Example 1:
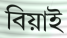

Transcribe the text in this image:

বিয়াই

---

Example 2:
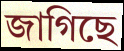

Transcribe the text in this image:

জাগিছে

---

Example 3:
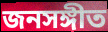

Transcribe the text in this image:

জনসঙ্গীত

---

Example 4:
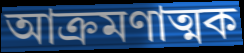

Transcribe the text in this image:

আক্ৰমণাত্মক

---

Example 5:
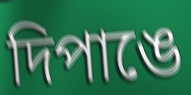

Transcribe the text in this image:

দিপাঙে